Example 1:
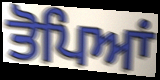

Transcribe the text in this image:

ਤੋਪਿਆਂ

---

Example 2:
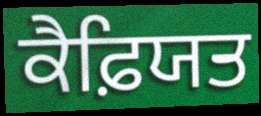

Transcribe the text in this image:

ਕੈਫ਼ਿਯਤ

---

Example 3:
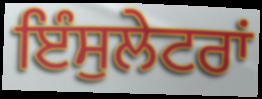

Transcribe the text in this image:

ਇੰਸੁਲੇਟਰਾਂ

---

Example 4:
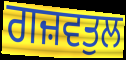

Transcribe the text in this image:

ਗਜ਼ਵਤੁਲ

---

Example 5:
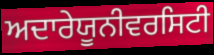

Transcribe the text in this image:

ਅਦਾਰੇਯੂਨੀਵਰਸਿਟੀ